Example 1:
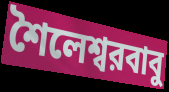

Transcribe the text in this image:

শৈলেশ্বরবাবু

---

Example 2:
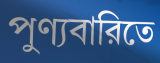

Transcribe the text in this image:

পুণ্যবারিতে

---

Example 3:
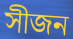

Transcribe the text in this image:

সীজন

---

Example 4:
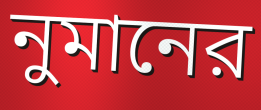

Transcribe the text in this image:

নুমানের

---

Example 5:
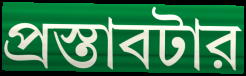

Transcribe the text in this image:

প্রস্তাবটার